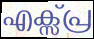
എക്സ്പ്ര